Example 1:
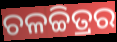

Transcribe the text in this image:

ଚଳଚ୍ଚିତ୍ରର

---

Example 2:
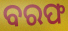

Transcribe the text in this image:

ବରଫ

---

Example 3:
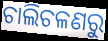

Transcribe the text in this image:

ଚାଲିଚଳଣରୁ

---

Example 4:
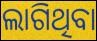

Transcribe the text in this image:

ଲାଗିଥିବା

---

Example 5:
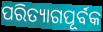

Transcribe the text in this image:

ପରିତ୍ୟାଗପୂର୍ବକ